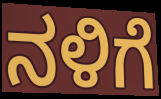
ನಳಿಗೆ